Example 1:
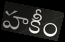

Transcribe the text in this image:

హకీం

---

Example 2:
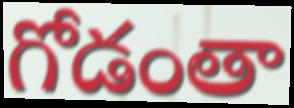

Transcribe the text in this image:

గోడంతా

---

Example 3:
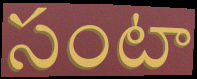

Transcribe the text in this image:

సంటా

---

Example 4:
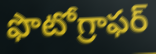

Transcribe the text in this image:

ఫొటోగ్రాఫర్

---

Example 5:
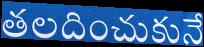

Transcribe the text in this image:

తలదించుకునే